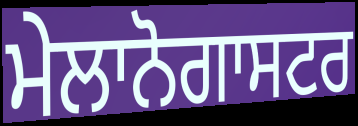
ਮੇਲਾਨੋਗਾਸਟਰ